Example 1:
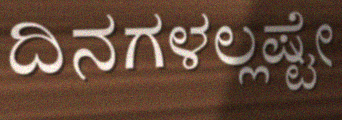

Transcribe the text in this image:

ದಿನಗಳಲ್ಲಷ್ಟೇ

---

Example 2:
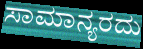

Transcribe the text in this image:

ಸಾಮಾನ್ಯರದು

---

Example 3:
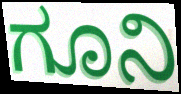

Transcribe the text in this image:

ಗೂನಿ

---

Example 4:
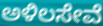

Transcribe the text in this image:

ಅಳಿಲಸೇವೆ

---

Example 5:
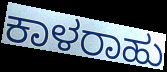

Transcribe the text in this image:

ಕಾಳರಾಹು